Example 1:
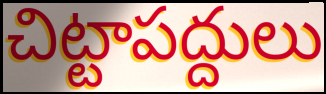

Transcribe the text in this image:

చిట్టాపద్దులు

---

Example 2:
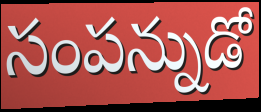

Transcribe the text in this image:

సంపన్నుడో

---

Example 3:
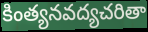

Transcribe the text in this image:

కింత్యనవద్యచరితా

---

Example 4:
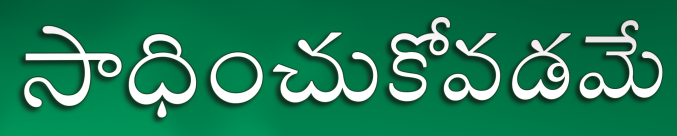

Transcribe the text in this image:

సాధించుకోవడమే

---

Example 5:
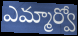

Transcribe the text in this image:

ఎమ్మార్వో